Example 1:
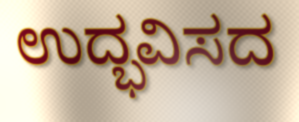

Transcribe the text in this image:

ಉದ್ಭವಿಸದ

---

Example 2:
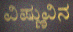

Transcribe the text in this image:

ವಿಷ್ಣುವಿನ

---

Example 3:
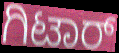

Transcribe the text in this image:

ಗಿಟಾರ್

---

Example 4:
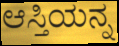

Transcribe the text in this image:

ಆಸ್ತಿಯನ್ನ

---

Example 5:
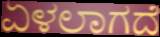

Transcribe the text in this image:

ಏಳಲಾಗದೆ